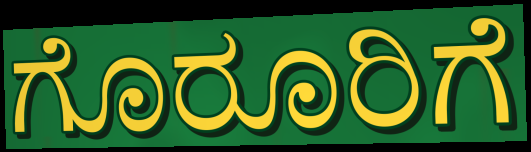
ಗೊರೂರಿಗೆ